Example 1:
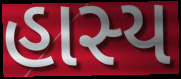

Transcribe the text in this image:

હાસ્ય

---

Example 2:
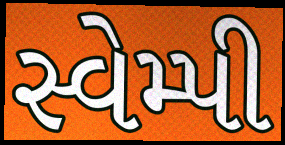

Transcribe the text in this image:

સ્વેમ્પી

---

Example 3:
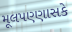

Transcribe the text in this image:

મૂલપણ્ણાસકે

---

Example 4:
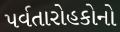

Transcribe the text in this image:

પર્વતારોહકોનો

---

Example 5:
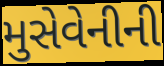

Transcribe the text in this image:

મુસેવેનીની